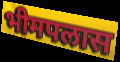
भीमपलास